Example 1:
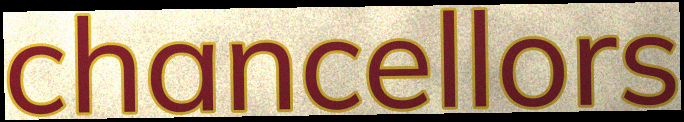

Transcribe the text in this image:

chancellors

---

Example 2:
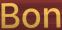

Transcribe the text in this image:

Bon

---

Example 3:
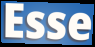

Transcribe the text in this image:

Esse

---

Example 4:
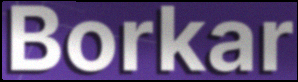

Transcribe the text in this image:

Borkar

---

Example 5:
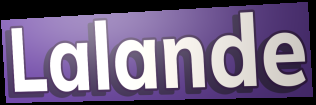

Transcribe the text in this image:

Lalande